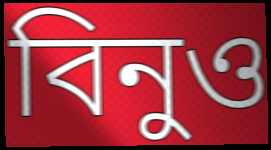
বিনুও